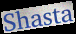
Shasta